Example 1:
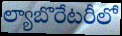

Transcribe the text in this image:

ల్యాబొరేటరీలో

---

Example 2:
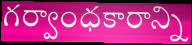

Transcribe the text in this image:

గర్వాంధకారాన్ని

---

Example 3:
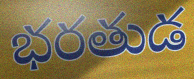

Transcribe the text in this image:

భరతుడ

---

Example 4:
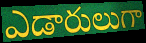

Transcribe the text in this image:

ఎడారులుగా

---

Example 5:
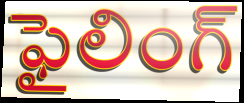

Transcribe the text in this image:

ఫైలింగ్